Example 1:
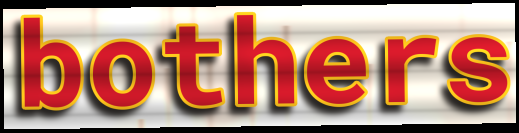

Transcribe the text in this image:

bothers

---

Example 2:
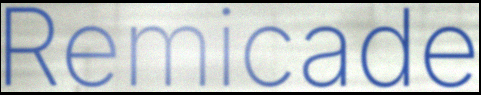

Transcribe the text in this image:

Remicade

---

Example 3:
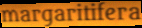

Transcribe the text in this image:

margaritifera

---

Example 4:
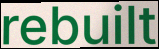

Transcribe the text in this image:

rebuilt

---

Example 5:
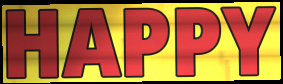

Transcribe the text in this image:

HAPPY